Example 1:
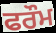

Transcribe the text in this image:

ਫਰੌਮ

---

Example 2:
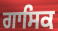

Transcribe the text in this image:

ਗਾਸਿਕ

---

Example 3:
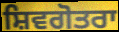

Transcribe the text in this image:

ਸ਼ਿਵਗੋਤਰਾ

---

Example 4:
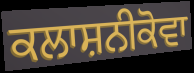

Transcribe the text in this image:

ਕਲਾਸ਼ਨੀਕੋਵਾ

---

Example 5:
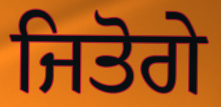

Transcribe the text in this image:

ਜਿਤੋਗੇ